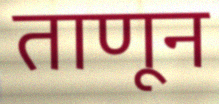
ताणून